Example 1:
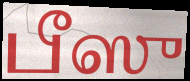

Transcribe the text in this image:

பீஸு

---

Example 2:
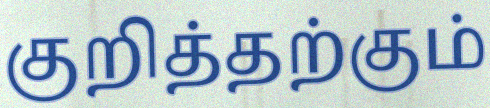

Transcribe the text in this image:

குறித்தற்கும்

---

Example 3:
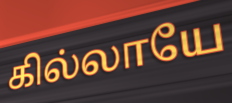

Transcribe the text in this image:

கில்லாயே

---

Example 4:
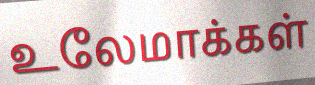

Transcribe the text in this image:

உலேமாக்கள்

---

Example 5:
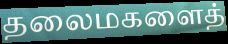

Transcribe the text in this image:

தலைமகளைத்